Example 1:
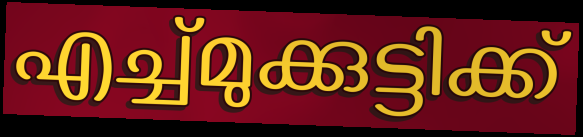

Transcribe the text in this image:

എച്ച്മുക്കുട്ടിക്ക്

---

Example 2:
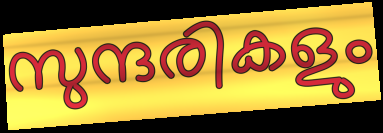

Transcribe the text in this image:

സുന്ദരികളും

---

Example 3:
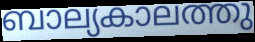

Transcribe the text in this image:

ബാല്യകാലത്തു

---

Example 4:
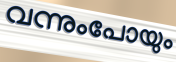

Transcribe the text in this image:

വന്നുംപോയും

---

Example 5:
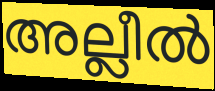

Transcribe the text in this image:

അല്ലീൽ